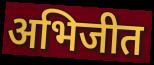
अभिजीत